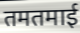
तमतमाई